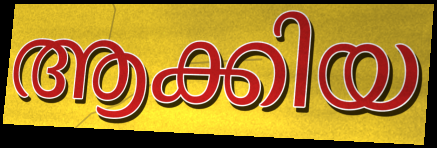
ആക്കിയ